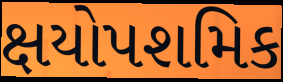
ક્ષયોપશમિક